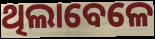
ଥିଲାବେଳେ